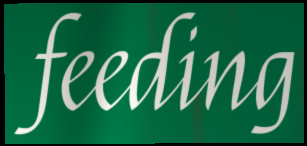
feeding